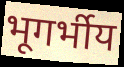
भूगर्भीय